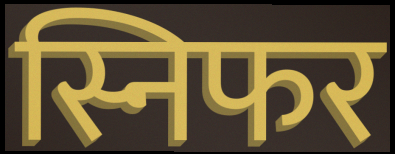
स्निफर